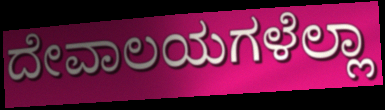
ದೇವಾಲಯಗಳೆಲ್ಲಾ